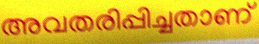
അവതരിപ്പിച്ചതാണ്